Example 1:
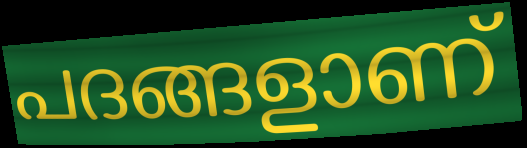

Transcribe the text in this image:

പദങ്ങളാണ്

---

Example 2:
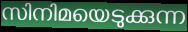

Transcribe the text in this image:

സിനിമയെടുക്കുന്ന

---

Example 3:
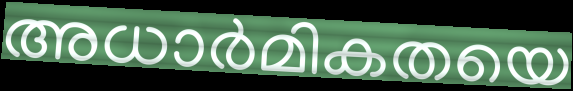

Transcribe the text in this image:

അധാർമികതയെ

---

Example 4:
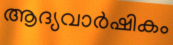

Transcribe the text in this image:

ആദ്യവാർഷികം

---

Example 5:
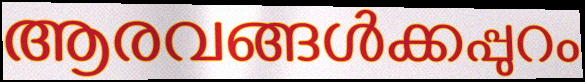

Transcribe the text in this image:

ആരവങ്ങൾക്കപ്പുറം